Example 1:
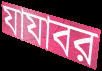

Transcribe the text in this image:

যাযাবর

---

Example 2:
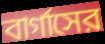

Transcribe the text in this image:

বার্গাসের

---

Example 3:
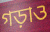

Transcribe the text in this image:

গড়াও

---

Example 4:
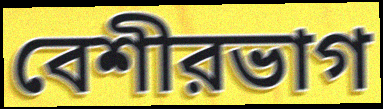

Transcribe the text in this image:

বেশীরভাগ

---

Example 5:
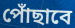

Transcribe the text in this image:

পোঁছাবে